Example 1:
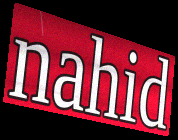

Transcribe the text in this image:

nahid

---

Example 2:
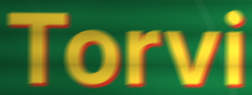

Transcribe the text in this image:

Torvi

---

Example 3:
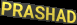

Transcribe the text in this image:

PRASHAD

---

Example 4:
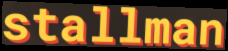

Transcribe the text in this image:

stallman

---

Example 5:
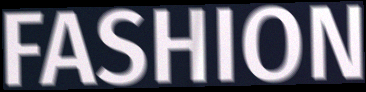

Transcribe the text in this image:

FASHION